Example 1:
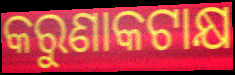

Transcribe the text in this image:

କରୁଣାକଟାକ୍ଷ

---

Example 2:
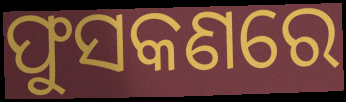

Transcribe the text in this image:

ଫୁସକଣରେ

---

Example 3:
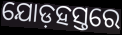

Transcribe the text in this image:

ଯୋଡ଼ହସ୍ତରେ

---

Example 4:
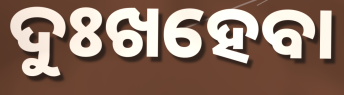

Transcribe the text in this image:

ଦୁଃଖହେବା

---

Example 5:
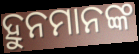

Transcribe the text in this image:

ହୁନମାନଙ୍କ